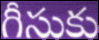
గీసుకు